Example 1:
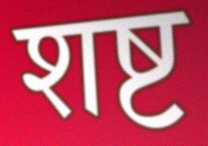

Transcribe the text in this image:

शष्ट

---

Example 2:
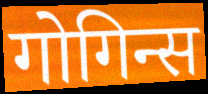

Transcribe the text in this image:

गोगिन्स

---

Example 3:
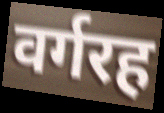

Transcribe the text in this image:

वर्गरह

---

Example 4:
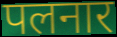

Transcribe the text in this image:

पलनार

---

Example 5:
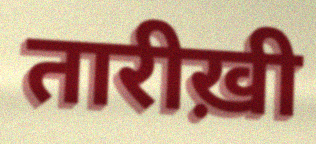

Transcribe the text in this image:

तारीख़ी